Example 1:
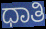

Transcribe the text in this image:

ಧಾತಿ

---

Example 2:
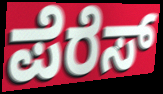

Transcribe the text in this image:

ಪೆರೆಸ್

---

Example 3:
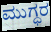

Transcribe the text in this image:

ಮುಗ್ಧರ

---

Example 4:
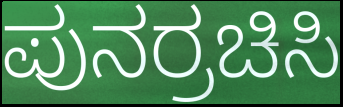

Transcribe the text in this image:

ಪುನರ್ರಚಿಸಿ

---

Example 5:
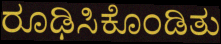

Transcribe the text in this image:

ರೂಢಿಸಿಕೊಂಡಿತು